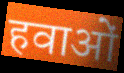
हवाओं